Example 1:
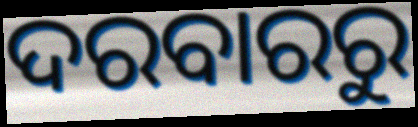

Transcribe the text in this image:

ଦରବାରରୁ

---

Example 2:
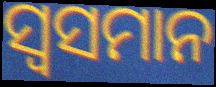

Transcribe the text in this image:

ସ୍ୱସମାନ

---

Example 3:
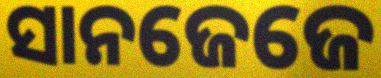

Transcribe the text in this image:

ସାନଜେଜେ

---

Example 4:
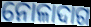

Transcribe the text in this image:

ନୋଳାଦାଗ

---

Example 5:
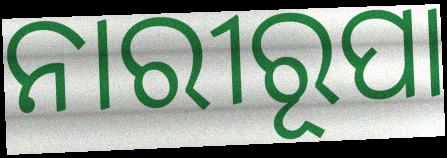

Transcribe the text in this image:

ନାରୀରୂପା